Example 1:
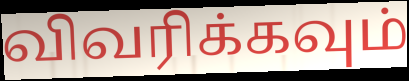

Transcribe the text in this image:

விவரிக்கவும்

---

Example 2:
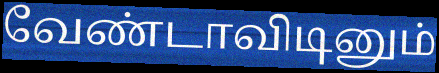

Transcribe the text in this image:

வேண்டாவிடினும்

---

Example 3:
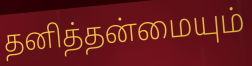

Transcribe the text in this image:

தனித்தன்மையும்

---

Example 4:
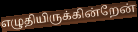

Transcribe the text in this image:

எழுதியிருக்கின்றேன்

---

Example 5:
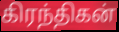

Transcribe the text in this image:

கிரந்திகன்